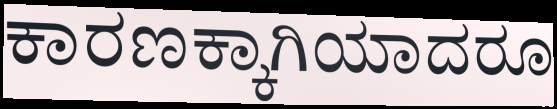
ಕಾರಣಕ್ಕಾಗಿಯಾದರೂ